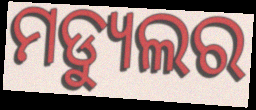
ମଡ୍ୟୁଲର